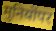
मुनियोंपर